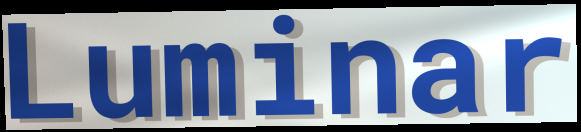
Luminar